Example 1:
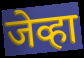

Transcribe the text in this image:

जेव्हा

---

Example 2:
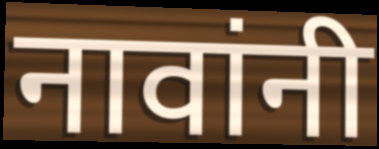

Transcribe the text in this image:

नावांनी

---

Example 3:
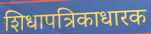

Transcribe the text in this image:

शिधापत्रिकाधारक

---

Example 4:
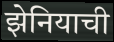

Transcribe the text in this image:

झेनियाची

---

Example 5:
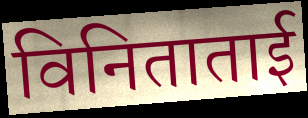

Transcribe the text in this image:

विनिताताई